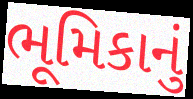
ભૂમિકાનું